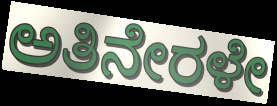
ಅತಿನೇರಳೇ